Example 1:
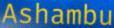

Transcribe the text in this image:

Ashambu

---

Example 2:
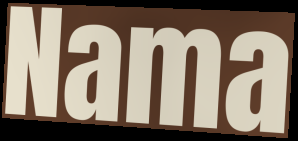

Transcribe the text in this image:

Nama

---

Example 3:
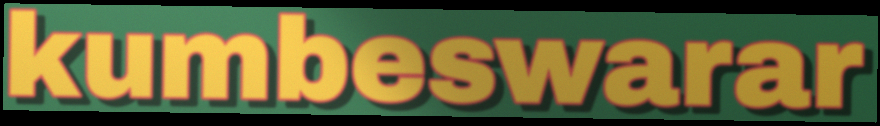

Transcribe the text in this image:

kumbeswarar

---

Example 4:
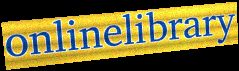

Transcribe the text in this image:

onlinelibrary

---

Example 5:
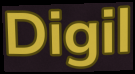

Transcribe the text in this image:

Digil